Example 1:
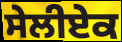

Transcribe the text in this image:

ਸੇਲੀਏਕ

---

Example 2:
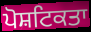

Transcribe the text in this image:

ਪੋਸ਼ਟਿਕਤਾ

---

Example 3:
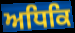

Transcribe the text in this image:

ਅਧਿਕਿ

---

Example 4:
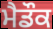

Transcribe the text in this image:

ਮੈਡੌਕ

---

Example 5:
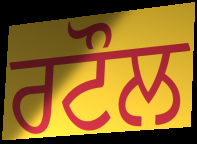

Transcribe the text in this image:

ਰਟੌਲ